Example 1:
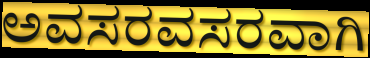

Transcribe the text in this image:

ಅವಸರವಸರವಾಗಿ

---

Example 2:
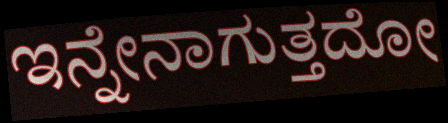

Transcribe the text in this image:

ಇನ್ನೇನಾಗುತ್ತದೋ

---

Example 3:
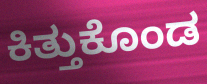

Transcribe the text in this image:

ಕಿತ್ತುಕೊಂಡ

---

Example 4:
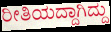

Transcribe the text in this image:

ರೀತಿಯದ್ದಾಗಿದ್ದು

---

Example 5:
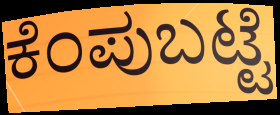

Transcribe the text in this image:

ಕೆಂಪುಬಟ್ಟೆ